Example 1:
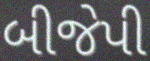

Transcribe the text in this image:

બીજેપી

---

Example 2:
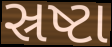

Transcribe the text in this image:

સ્રષ્ટા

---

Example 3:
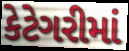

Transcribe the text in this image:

કેટેગરીમાં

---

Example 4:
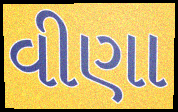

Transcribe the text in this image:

વીણા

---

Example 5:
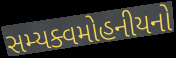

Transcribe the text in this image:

સમ્યક્વમોહનીયનો